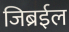
जिब्रईल